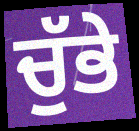
ਚੁੱਭੇ